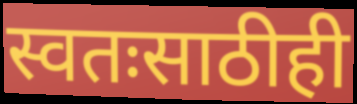
स्वतःसाठीही